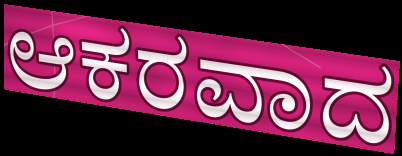
ಆಕರವಾದ